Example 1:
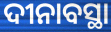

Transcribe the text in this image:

ଦୀନାବସ୍ଥା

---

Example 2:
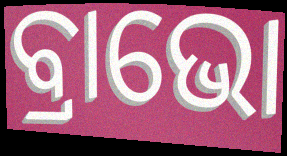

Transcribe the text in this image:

ବ୍ରାଭୋ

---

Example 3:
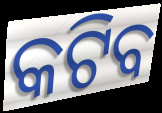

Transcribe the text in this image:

କଟିବ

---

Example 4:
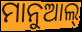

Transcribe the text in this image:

ମାନୁଆଲ୍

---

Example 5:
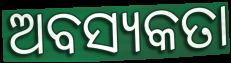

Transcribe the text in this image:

ଅବସ୍ୟକତା